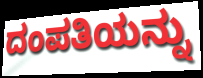
ದಂಪತಿಯನ್ನು